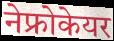
नेफ्रोकेयर